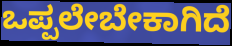
ಒಪ್ಪಲೇಬೇಕಾಗಿದೆ